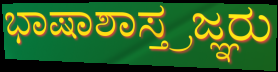
ಭಾಷಾಶಾಸ್ತ್ರಜ್ಞರು